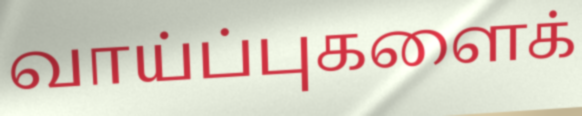
வாய்ப்புகளைக்